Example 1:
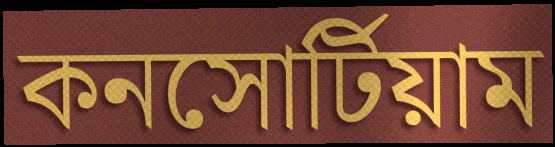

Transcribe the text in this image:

কনসোর্টিয়াম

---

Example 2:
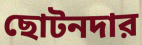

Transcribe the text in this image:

ছোটনদার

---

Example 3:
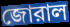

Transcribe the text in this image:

জোরাল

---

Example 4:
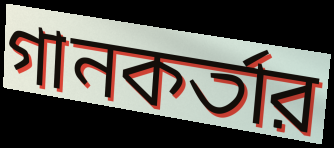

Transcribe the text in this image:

গানকর্তার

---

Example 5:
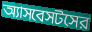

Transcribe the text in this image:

অ্যাসবেসটসের